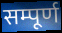
सम्पूर्ण